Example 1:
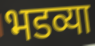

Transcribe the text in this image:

भडव्या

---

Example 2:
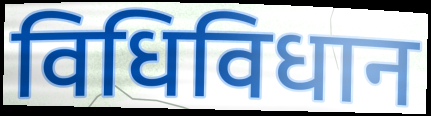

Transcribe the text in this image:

विधिविधान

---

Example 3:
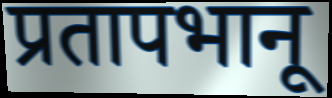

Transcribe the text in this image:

प्रतापभानू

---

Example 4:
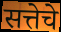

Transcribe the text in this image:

सत्तेचे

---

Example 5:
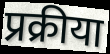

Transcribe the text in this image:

प्रक्रीया